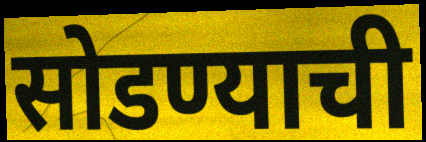
सोडण्याची